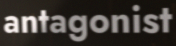
antagonist